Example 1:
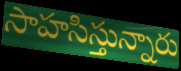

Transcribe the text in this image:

సాహసిస్తున్నారు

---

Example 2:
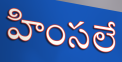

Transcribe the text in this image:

హింసలే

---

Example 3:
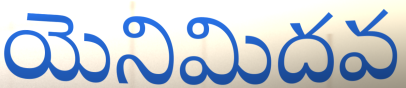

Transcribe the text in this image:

యెనిమిదవ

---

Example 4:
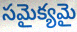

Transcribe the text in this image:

సమైక్యమై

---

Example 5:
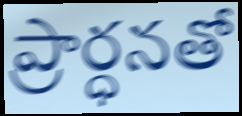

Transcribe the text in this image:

ప్రార్ధనతో